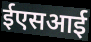
ईएसआई